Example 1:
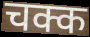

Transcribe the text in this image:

चक्क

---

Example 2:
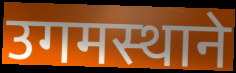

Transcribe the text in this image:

उगमस्थाने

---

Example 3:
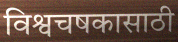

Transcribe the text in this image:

विश्वचषकासाठी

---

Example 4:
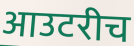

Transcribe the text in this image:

आउटरीच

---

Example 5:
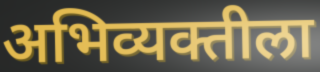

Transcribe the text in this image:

अभिव्यक्तीला